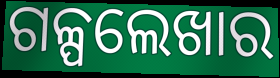
ଗଳ୍ପଲେଖାର